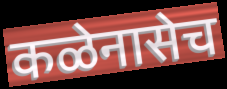
कळेनासेच